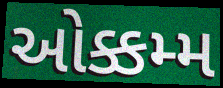
ઓક્કમ્મ